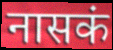
नासकं